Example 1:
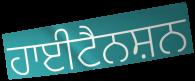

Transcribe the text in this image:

ਹਾਈਟੈਨਸ਼ਨ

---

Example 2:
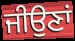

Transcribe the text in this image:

ਜੀਉਣਾਂ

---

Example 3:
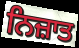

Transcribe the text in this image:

ਨਿਜ਼ਾਤ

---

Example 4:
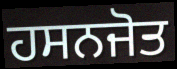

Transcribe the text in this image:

ਹਸਨਜੋਤ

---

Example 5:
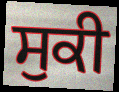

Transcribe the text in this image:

ਸੁਕੀ